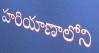
హరియాణాలోని